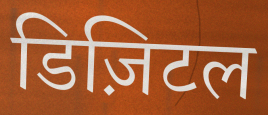
डिज़िटल